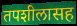
तपशीलासह